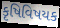
કૃષિવિષયક